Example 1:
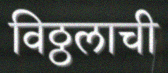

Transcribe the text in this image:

विठ्ठलाची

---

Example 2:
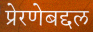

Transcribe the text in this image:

प्रेरणेबद्दल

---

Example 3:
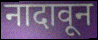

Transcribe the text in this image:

नादावून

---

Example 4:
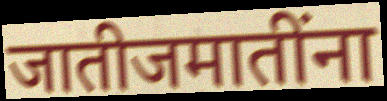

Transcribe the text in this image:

जातीजमातींना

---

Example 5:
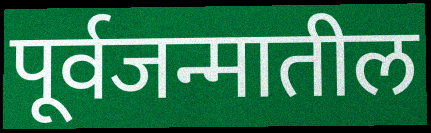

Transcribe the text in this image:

पूर्वजन्मातील